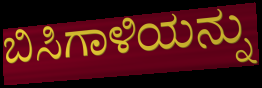
ಬಿಸಿಗಾಳಿಯನ್ನು